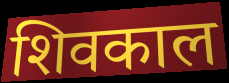
शिवकाल